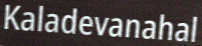
Kaladevanahal